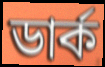
ডাৰ্ক